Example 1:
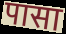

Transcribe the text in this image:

पासा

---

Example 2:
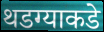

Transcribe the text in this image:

थडग्याकडे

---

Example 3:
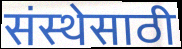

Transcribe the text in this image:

संस्थेसाठी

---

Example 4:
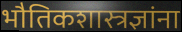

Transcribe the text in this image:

भौतिकशास्त्रज्ञांना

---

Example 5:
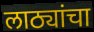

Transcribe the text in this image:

लाठ्यांचा